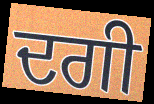
ਦਗੀ